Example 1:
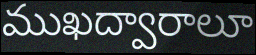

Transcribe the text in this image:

ముఖద్వారాలూ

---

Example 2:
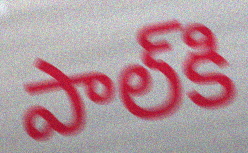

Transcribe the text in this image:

పాల్‌కి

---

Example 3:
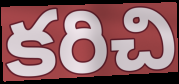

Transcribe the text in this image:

కరిచి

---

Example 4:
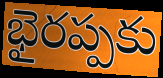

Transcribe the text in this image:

భైరప్పకు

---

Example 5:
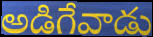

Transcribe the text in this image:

అడిగేవాడు